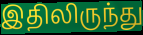
இதிலிருந்து